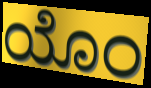
ಯೊಂ